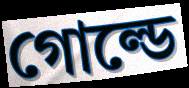
গোল্ডে